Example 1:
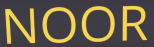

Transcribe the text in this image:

NOOR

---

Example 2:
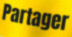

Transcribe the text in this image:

Partager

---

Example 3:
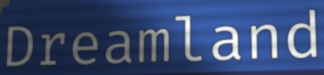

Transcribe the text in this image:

Dreamland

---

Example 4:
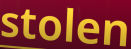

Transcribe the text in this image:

stolen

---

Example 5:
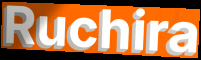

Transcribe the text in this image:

Ruchira